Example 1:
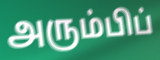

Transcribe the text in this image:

அரும்பிப்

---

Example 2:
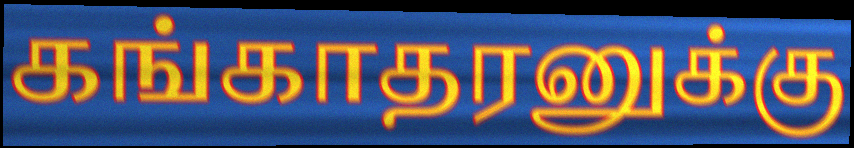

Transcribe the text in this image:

கங்காதரனுக்கு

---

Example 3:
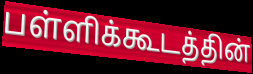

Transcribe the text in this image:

பள்ளிக்கூடத்தின்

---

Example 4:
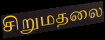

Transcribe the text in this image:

சிறுமதலை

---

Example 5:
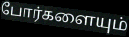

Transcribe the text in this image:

போர்களையும்